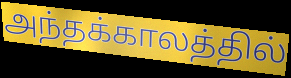
அந்தக்காலத்தில்